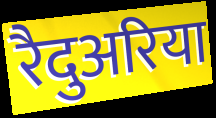
रैदुअरिया